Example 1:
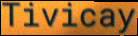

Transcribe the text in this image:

Tivicay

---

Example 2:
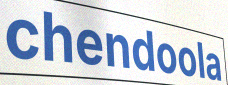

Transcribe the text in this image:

chendoola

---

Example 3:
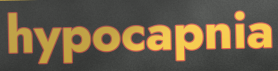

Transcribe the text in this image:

hypocapnia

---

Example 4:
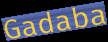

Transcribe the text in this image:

Gadaba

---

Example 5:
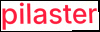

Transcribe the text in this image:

pilaster